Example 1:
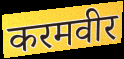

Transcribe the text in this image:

करमवीर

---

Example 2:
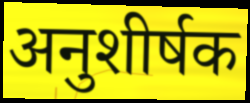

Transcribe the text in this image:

अनुशीर्षक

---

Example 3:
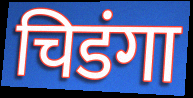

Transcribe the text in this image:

चिडंगा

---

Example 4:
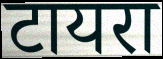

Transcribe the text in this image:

टायरा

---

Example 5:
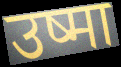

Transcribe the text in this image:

उष्मा